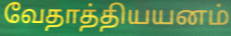
வேதாத்தியயனம்